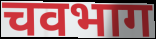
चवभाग